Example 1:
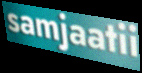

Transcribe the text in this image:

samjaatii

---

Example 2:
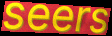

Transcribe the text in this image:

seers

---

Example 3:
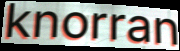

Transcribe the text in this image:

knorran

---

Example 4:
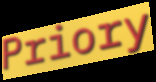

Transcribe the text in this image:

Priory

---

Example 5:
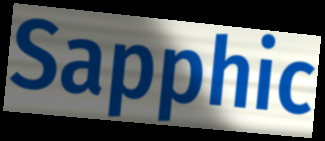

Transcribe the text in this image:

Sapphic